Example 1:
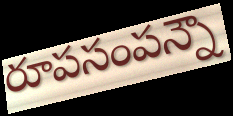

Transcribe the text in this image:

రూపసంపన్నౌ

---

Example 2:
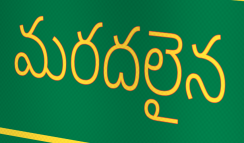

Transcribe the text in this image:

మరదలైన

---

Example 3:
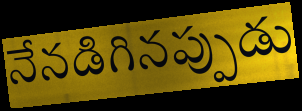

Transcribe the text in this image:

నేనడిగినప్పుడు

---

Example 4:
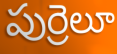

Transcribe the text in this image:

పుర్రెలూ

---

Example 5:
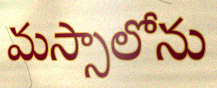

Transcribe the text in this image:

మస్సాలోను